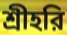
শ্রীহরি